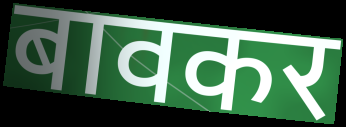
बावकर